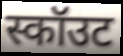
स्कॉउट